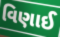
વિણાઈ